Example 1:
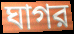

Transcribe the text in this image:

ঘাগর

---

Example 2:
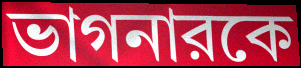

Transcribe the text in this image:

ভাগনারকে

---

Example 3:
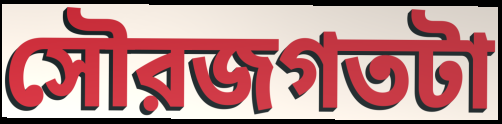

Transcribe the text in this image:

সৌরজগতটা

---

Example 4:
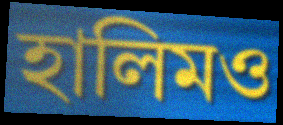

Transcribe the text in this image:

হালিমও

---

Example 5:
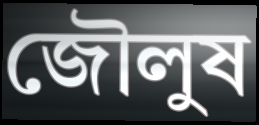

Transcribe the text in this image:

জৌলুষ